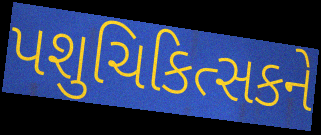
પશુચિકિત્સકને